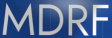
MDRF